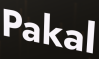
Pakal